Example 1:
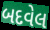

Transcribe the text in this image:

બદવેલ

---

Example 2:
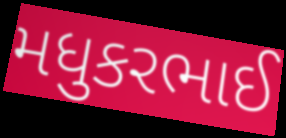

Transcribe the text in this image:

મધુકરભાઈ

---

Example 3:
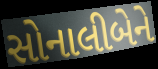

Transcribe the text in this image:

સોનાલીબેને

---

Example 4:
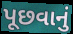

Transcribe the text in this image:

પૂછવાનું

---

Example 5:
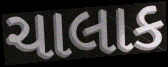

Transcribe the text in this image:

ચાલાક